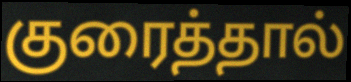
குரைத்தால்